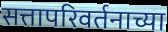
सत्तापरिवर्तनाच्या